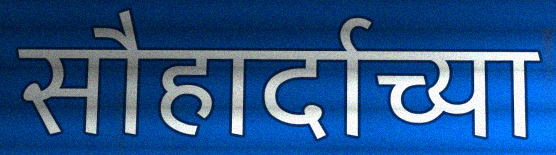
सौहार्दाच्या